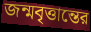
জন্মবৃত্তান্তের